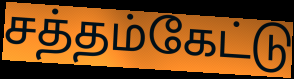
சத்தம்கேட்டு